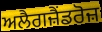
ਅਲੈਗਜ਼ੈਂਡਰੋਜ਼